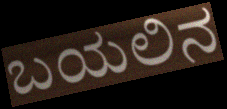
ಬಯಲಿನ